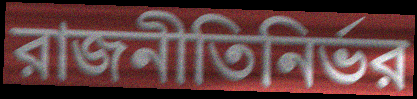
রাজনীতিনির্ভর